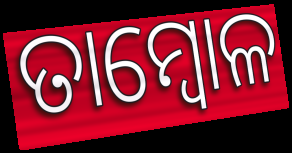
ତାମ୍ବୋଳ